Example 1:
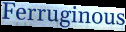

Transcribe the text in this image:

Ferruginous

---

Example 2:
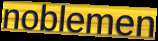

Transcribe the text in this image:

noblemen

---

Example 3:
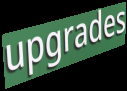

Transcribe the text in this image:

upgrades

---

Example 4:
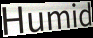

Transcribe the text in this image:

Humid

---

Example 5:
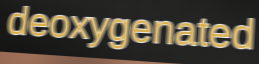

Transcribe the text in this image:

deoxygenated